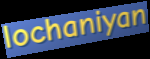
lochaniyan